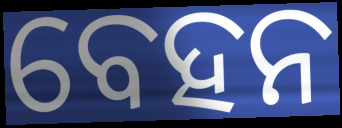
ବେହନ